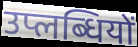
उप्लब्धियों